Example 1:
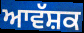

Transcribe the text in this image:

ਆਵੱਸ਼ਕ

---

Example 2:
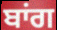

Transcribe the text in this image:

ਬਾਂਗ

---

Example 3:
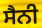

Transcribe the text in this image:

ਸੈਨੀ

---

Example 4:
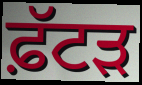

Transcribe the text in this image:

ਫ਼ੱਟੜ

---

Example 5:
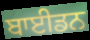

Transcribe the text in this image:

ਬਾਈਡਨ